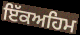
ਇੱਕਅਹਿਮ